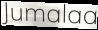
Jumalaa